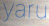
yaru